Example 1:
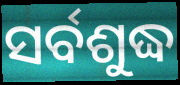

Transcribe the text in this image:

ସର୍ବଶୁଦ୍ଧ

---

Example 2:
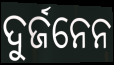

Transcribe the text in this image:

ଦୁର୍ଜନେନ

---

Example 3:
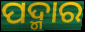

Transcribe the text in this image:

ପଦ୍ମାର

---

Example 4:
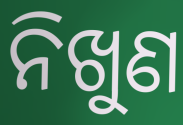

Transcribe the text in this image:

ନିଖୁଣ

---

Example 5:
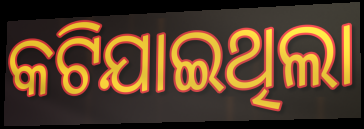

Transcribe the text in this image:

କଟିଯାଇଥିଲା